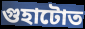
গুহাটোত